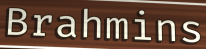
Brahmins